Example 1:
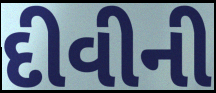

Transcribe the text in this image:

દીવીની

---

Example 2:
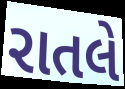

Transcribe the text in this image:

રાતલે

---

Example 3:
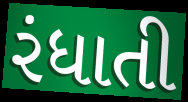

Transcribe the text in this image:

રંધાતી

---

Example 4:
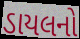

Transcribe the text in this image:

ડાયલનો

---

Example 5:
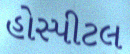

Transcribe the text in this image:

હોસ્પીટલ